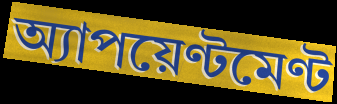
অ্যাপয়েণ্টমেণ্ট